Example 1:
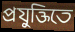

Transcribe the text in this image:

প্রযুক্তিতে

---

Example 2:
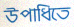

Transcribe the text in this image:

উপাধিতে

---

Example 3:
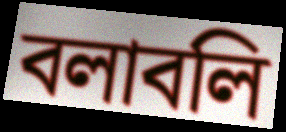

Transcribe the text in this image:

বলাবলি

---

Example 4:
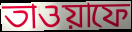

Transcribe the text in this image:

তাওয়াফে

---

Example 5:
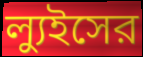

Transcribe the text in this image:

ল্যুইসের